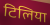
टिलिया